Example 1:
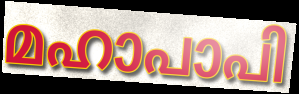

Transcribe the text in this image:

മഹാപാപി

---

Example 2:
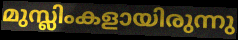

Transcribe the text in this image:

മുസ്ലിംകളായിരുന്നു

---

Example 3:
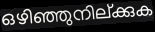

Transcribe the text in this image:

ഒഴിഞ്ഞുനില്ക്കുക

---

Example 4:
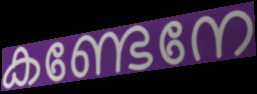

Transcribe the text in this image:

കണ്ടേനേ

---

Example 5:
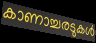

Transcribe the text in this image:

കാണാച്ചരടുകൾ